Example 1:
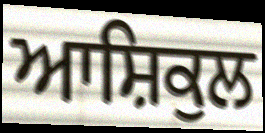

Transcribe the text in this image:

ਆਸ਼ਿਕੁਲ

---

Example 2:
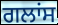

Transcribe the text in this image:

ਗਲਾਂਸ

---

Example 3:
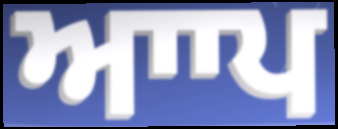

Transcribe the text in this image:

ਆਾਪ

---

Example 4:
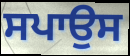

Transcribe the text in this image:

ਸਪਾਉਸ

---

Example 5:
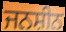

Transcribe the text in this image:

ਜਨਸ਼ੀਨ